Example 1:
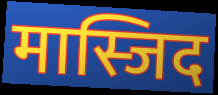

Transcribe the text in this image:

मास्जिद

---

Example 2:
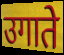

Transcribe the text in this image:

उगाते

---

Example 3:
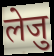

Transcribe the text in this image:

लेजु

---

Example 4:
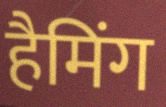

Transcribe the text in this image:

हैमिंग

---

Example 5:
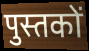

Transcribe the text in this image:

पुस्तकों